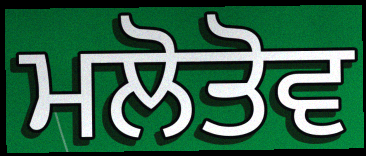
ਮਲੋਤੋਵ